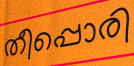
തീപ്പൊരി